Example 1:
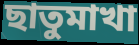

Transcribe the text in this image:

ছাতুমাখা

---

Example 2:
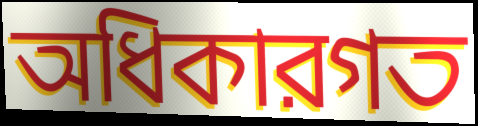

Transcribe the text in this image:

অধিকারগত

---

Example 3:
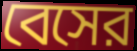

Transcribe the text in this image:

বেসের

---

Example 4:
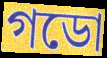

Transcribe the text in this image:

গডো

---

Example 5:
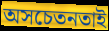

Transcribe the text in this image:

অসচেতনতাই